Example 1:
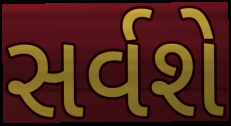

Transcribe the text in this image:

સર્વશે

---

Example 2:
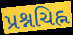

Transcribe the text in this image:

પ્રશ્નચિહ્ન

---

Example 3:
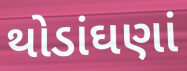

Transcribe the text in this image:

થોડાંઘણાં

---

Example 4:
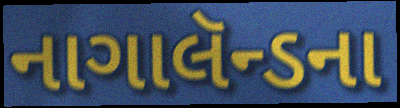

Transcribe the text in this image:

નાગાલૅન્ડના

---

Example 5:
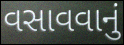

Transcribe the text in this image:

વસાવવાનું